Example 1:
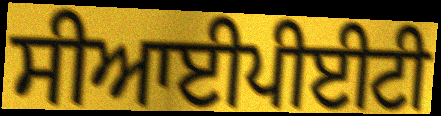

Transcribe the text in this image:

ਸੀਆਈਪੀਈਟੀ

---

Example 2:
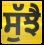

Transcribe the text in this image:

ਸੁੱਝੈ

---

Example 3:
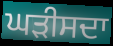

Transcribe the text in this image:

ਘੜੀਸਦਾ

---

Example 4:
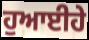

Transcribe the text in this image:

ਹੁਆਈਹੇ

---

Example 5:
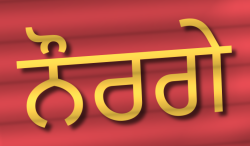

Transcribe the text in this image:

ਨੌਰਗੇ